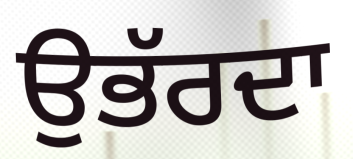
ਉਭੱਰਦਾ